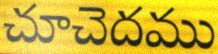
చూచెదము